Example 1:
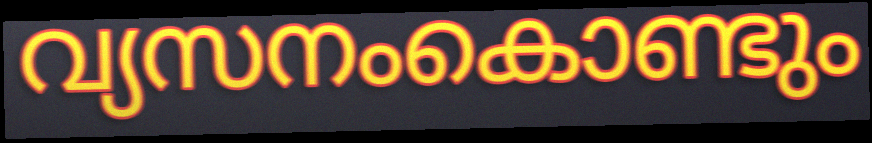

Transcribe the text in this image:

വ്യസനംകൊണ്ടും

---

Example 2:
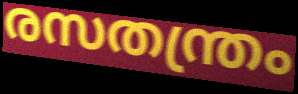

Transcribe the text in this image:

രസതന്ത്രം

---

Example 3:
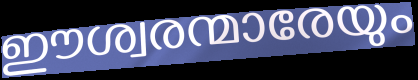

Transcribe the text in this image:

ഈശ്വരന്മാരേയും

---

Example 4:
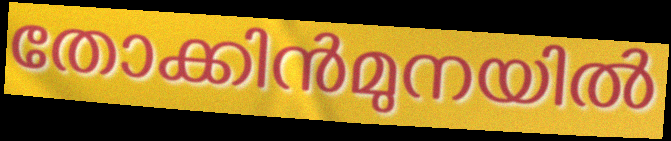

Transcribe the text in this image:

തോക്കിൻമുനയിൽ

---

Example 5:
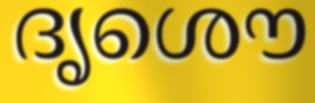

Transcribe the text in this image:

ദൃശൌ